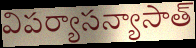
విపర్యాసన్యాసాత్